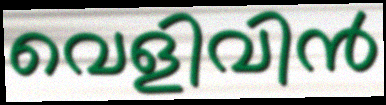
വെളിവിൻ